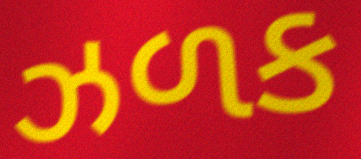
ઝળક